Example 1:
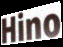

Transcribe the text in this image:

Hino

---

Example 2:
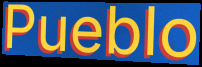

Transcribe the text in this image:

Pueblo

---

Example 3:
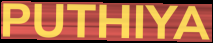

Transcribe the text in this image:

PUTHIYA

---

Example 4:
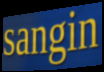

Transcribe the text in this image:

sangin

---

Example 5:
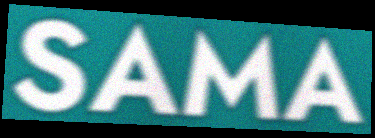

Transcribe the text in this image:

SAMA